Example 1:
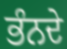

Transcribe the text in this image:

ਭੰਨਦੇ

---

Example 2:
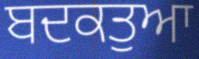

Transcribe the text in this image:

ਬਦਕਤੁਆ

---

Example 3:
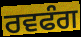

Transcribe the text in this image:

ਰਵਫੰਗ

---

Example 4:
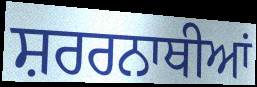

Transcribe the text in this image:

ਸ਼ਰਰਨਾਥੀਆਂ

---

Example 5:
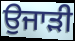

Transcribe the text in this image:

ਉਜਾੜੀ